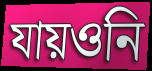
যায়ওনি